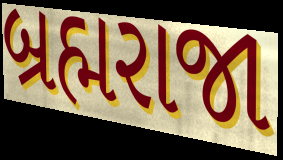
બ્રહ્મરાજા